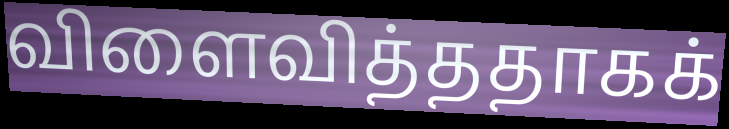
விளைவித்ததாகக்